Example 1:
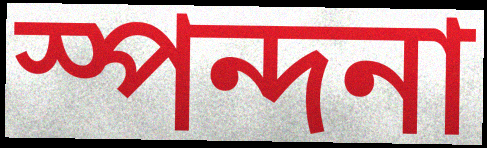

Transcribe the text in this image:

স্পন্দনা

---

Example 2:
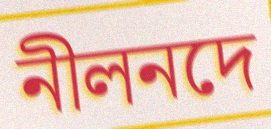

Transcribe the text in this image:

নীলনদে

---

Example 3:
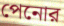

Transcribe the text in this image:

পেনোর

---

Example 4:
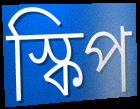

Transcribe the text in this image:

স্কিপ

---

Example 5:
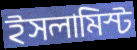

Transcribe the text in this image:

ইসলামিস্ট